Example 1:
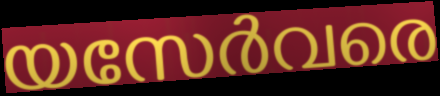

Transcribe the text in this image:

യസേർവരെ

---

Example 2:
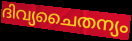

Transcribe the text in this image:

ദിവ്യചൈതന്യം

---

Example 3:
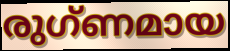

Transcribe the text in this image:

രുഗ്ണമായ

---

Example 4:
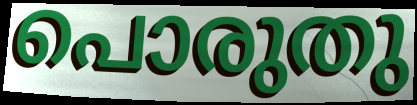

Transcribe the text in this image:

പൊരുതു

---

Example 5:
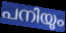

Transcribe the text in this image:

പനിയും